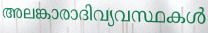
അലങ്കാരാദിവ്യവസ്ഥകൾ